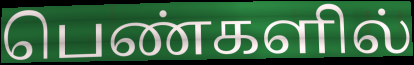
பெண்களில்